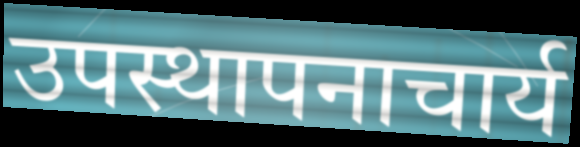
उपस्थापनाचार्य